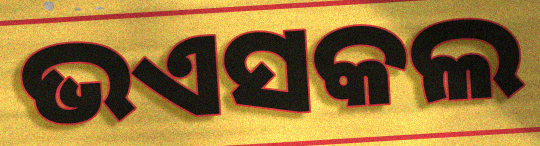
ଭଏସକଲ